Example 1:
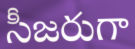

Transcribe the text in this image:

సీజరుగా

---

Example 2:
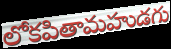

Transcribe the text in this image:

లోకపితామహుడగు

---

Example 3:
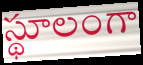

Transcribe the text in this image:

స్థూలంగా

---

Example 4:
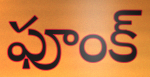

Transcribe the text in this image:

ఫూంక్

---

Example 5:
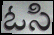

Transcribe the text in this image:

ఓసి